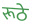
रूठे